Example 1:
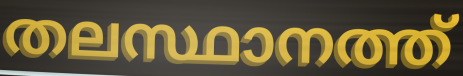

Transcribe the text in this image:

തലസ്ഥാനത്ത്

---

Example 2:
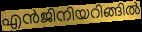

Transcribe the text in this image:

എൻജിനിയറിങ്ങിൽ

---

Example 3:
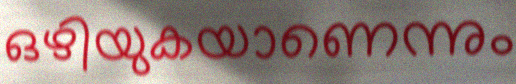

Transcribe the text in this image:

ഒഴിയുകയാണെന്നും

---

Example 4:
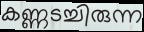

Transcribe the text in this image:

കണ്ണടച്ചിരുന്ന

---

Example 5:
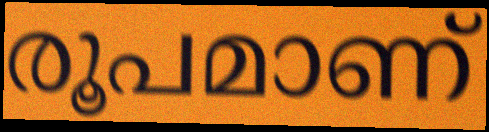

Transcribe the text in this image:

രൂപമാണ്